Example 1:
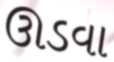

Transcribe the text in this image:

ઊડવા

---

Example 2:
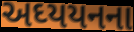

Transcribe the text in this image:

અઘ્યયનના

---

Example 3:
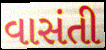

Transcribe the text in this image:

વાસંતી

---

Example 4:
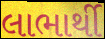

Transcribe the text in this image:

લાભાર્થી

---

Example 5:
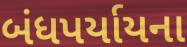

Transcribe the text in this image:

બંધપર્યાયના